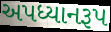
અપધ્યાનરૂપ